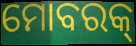
ମୋବରକ୍